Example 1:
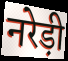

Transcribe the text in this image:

नरेड़ी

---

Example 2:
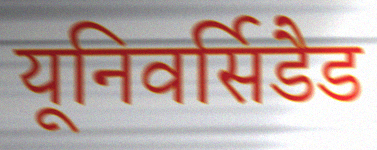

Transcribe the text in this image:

यूनिवर्सिडैड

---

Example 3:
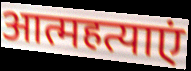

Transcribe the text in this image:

आत्महत्याएं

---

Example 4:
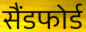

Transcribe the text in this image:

सैंडफोर्ड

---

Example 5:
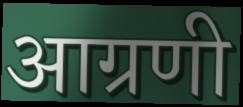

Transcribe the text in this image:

आग्रणी